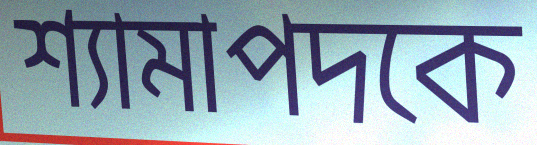
শ্যামাপদকে